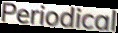
Periodical